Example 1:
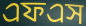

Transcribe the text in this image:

এফএস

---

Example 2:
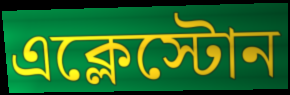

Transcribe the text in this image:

এক্লেস্টোন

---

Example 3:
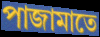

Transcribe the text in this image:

পাজামাতে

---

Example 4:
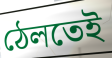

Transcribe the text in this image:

ঠেলতেই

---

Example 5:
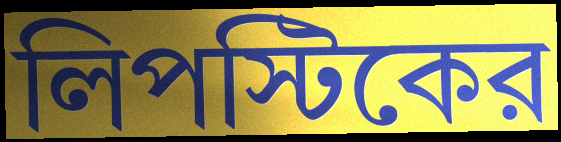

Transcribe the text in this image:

লিপস্টিকের